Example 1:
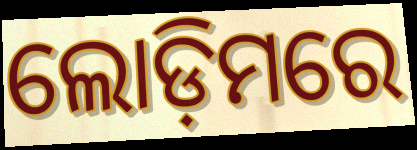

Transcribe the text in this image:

ଲୋଡ଼ିମରେ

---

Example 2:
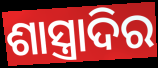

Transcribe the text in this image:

ଶାସ୍ତ୍ରାଦିର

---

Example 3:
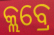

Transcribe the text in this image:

କ୍ଲବ୍ରେ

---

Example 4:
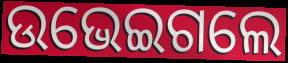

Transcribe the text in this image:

ଉଭେଇଗଲେ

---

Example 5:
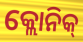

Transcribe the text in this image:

କ୍ଲୋନିକ୍